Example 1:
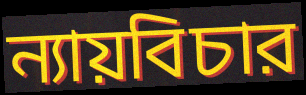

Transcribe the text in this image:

ন্যায়বিচার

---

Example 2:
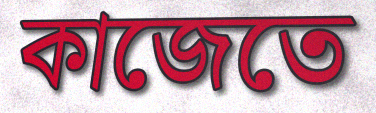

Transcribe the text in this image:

কাজেতে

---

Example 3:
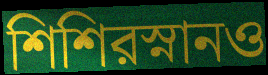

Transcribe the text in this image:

শিশিরস্নানও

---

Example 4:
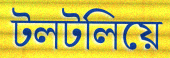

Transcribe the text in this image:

টলটলিয়ে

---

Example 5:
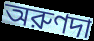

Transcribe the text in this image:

অরুণদা